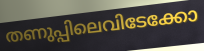
തണുപ്പിലെവിടേക്കോ